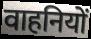
वाहनियों